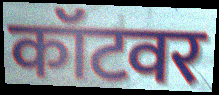
कॉटवर